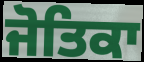
ਜੋਤਿਕਾ